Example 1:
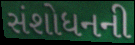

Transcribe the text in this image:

સંશોધનની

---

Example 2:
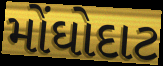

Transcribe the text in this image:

મોંઘોદાટ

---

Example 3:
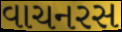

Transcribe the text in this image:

વાચનરસ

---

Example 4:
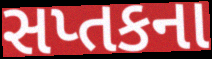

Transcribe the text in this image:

સપ્તકના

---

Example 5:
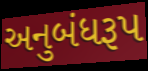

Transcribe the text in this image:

અનુબંધરૂપ